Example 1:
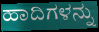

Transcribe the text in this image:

ಹಾದಿಗಳನ್ನು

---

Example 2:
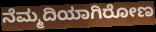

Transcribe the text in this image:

ನೆಮ್ಮದಿಯಾಗಿರೋಣ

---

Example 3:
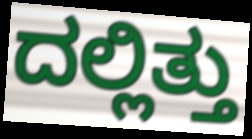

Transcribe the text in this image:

ದಲ್ಲಿತ್ತು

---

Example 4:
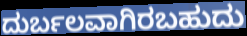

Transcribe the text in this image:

ದುರ್ಬಲವಾಗಿರಬಹುದು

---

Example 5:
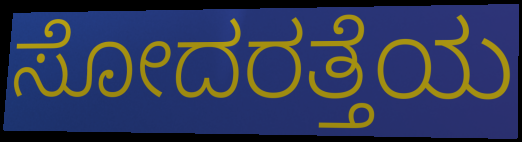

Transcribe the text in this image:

ಸೋದರತ್ತೆಯ